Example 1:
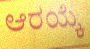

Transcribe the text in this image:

ಆರಯ್ಕೆ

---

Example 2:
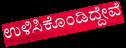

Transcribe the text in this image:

ಉಳಿಸಿಕೊಂಡಿದ್ದೇವೆ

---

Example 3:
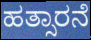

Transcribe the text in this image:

ಹತ್ಸಾರನೆ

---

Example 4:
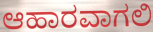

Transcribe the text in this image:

ಆಹಾರವಾಗಲಿ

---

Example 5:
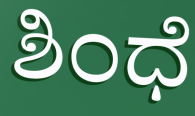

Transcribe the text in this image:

ಶಿಂಧೆ